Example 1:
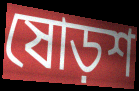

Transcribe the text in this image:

ষোড়শ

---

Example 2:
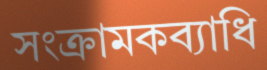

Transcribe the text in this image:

সংক্রামকব্যাধি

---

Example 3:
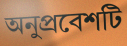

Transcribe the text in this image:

অনুপ্রবেশটি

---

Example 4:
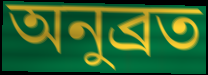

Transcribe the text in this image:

অনুব্রত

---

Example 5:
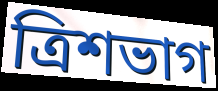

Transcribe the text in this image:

ত্রিশভাগ